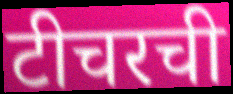
टीचरची